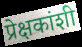
प्रेक्षकांशी